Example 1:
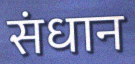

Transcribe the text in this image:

संधान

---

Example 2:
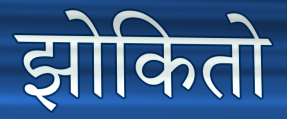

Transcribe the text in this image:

झोकितो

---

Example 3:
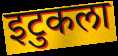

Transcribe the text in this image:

इटुकला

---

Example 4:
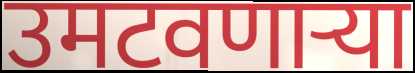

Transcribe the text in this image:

उमटवणार्‍या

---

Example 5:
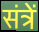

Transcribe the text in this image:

संत्रें